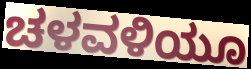
ಚಳವಳಿಯೂ